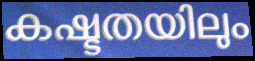
കഷ്ടതയിലും